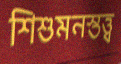
শিশুমনস্তত্ত্ব